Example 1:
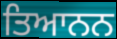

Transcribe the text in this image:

ਤਿਆਨਨ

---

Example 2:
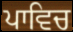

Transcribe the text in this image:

ਪਾਵਿਚ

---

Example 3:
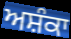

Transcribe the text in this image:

ਅਸ਼ੰਕਾ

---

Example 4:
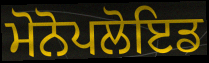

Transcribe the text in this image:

ਮੋਨੋਪਲੋਇਡ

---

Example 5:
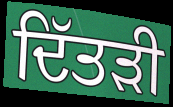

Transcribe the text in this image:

ਦਿੱਤੜੀ